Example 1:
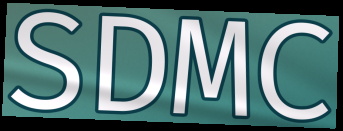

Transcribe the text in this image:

SDMC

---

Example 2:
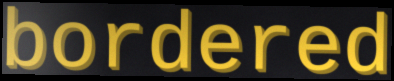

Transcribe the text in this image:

bordered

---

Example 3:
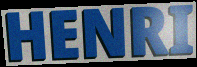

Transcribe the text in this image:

HENRI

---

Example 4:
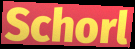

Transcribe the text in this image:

Schorl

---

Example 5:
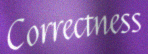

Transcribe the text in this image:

Correctness